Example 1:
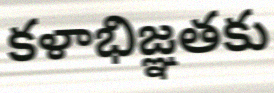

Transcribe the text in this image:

కళాభిజ్ఞతకు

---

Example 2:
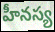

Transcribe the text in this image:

హీనస్య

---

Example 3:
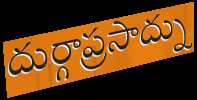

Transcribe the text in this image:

దుర్గాప్రసాద్ను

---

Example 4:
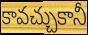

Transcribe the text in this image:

కావచ్చుకానీ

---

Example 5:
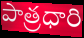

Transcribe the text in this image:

పాత్రధారి